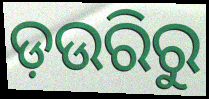
ଡ଼ଉରିରୁ